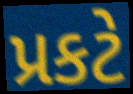
પ્રકટે